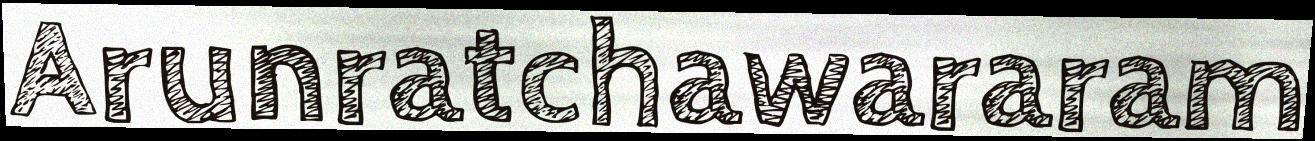
Arunratchawararam